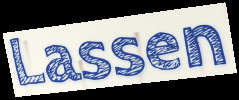
Lassen